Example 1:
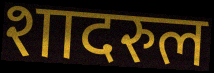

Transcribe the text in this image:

शादरुल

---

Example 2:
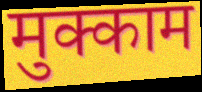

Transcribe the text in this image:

मुक्काम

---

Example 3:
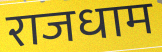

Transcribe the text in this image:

राजधाम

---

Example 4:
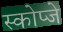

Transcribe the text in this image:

स्कोप्जे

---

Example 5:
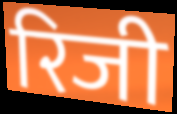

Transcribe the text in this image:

रिजी